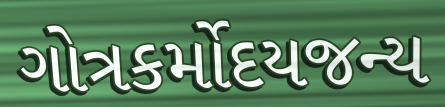
ગોત્રકર્મોદયજન્ય